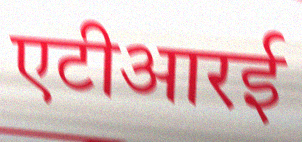
एटीआरई